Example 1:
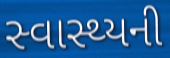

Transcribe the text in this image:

સ્વાસ્થ્યની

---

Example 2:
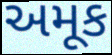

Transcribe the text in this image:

અમૂક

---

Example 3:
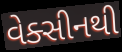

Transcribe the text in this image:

વેક્સીનથી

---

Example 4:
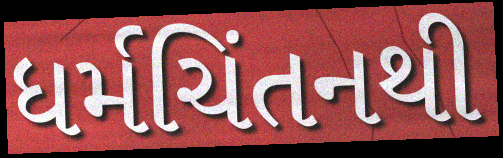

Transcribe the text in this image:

ધર્મચિંતનથી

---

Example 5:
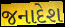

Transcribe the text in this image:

જનાદેશ